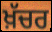
ਖ਼ੱਚਰ